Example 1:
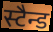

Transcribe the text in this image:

स्टैन्ड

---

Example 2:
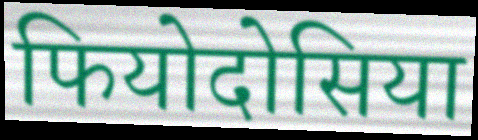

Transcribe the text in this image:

फियोदोसिया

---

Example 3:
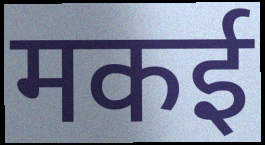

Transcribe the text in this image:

मकई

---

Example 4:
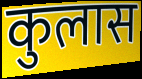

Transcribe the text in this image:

कुलास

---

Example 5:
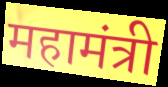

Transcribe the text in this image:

महामंत्री